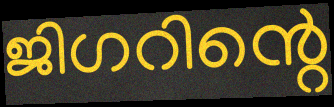
ജിഗറിന്റെ